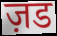
ज़ड